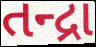
તન્દ્રા